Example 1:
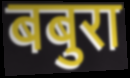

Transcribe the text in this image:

बबुरा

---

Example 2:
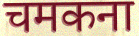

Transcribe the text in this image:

चमकना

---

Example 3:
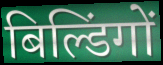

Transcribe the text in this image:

बिल्डिंगों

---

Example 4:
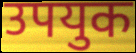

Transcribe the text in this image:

उपयुक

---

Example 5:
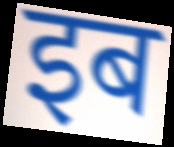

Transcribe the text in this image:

इब